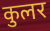
कुलर